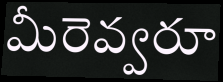
మీరెవ్వరూ